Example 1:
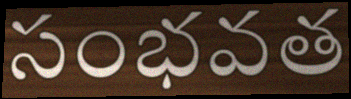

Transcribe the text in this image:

సంభవత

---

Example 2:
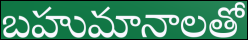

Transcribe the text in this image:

బహుమానాలతో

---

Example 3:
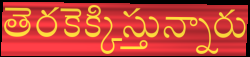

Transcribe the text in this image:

తెరకెక్కిస్తున్నారు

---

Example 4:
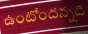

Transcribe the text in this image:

ఉంటోందన్నది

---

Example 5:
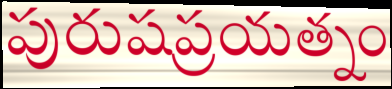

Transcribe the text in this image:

పురుషప్రయత్నం